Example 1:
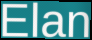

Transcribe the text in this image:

Elan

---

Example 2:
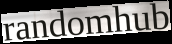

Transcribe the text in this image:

randomhub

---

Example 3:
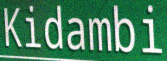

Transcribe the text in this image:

Kidambi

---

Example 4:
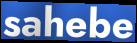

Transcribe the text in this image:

sahebe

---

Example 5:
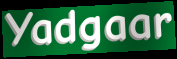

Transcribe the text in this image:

Yadgaar